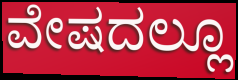
ವೇಷದಲ್ಲೂ